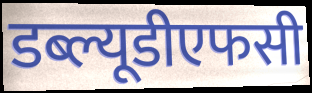
डब्ल्यूडीएफसी